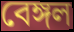
বেঙ্গল